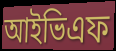
আইভিএফ